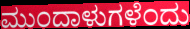
ಮುಂದಾಳುಗಳೆಂದು